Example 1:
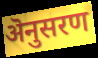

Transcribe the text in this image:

ऄनुसरण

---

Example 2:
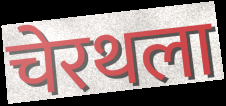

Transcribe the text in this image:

चेरथला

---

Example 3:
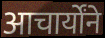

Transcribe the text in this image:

आचार्योंने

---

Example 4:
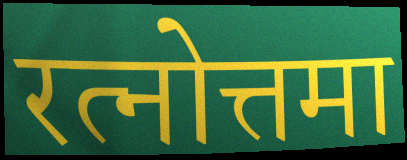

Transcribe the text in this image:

रत्नोत्तमा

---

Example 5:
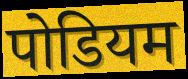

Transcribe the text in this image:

पोडियम